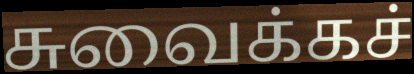
சுவைக்கச்